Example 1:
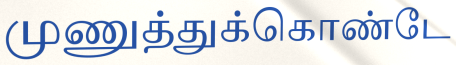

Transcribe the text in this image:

முணுத்துக்கொண்டே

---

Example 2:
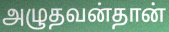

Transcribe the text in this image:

அழுதவன்தான்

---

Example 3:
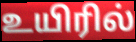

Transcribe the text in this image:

உயிரில்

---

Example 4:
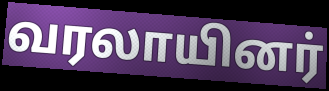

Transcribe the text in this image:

வரலாயினர்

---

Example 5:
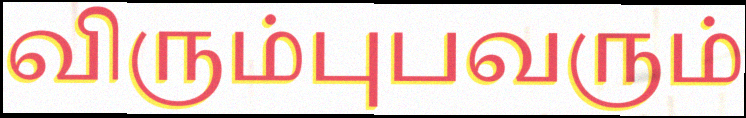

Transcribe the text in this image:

விரும்புபவரும்